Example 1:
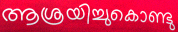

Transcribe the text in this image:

ആശ്രയിച്ചുകൊണ്ടു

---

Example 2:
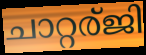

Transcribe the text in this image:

ചാറ്റര്ജി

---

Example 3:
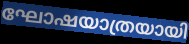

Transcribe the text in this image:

ഘോഷയാത്രയായി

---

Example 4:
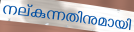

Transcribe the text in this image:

നല്‌കുന്നതിനുമായി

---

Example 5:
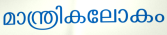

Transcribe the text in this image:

മാന്ത്രികലോകം